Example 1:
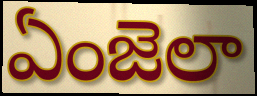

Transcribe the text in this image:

ఏంజెలా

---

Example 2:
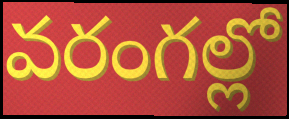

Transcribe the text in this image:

వరంగల్లో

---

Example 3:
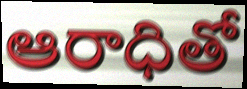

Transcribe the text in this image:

ఆరాధితో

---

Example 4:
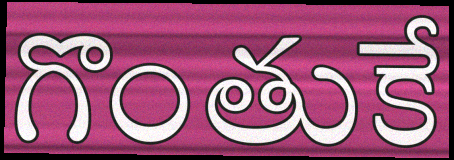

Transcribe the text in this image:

గొంతుకే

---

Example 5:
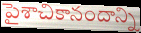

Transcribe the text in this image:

పైశాచికానందాన్ని